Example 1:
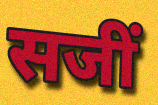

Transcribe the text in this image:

सजीं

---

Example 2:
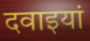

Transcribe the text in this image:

दवाइयां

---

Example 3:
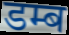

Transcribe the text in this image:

डम्ब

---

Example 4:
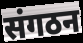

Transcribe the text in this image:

संगठन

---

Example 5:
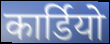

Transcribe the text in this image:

कार्डियो